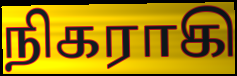
நிகராகி